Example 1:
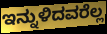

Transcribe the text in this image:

ಇನ್ನುಳಿದವರೆಲ್ಲ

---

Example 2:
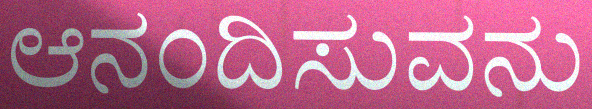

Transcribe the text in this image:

ಆನಂದಿಸುವನು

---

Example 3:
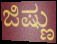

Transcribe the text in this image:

ಜಿಷ್ಣು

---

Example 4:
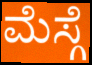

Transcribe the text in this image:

ಮೆಸ್ಗೆ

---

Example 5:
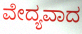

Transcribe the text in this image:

ವೇದ್ಯವಾದ